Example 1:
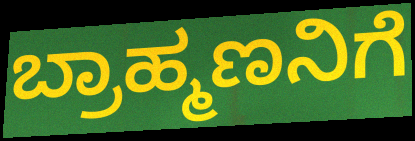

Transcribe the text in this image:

ಬ್ರಾಹ್ಮಣನಿಗೆ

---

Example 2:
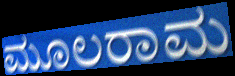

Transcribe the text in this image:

ಮೂಲರಾಮ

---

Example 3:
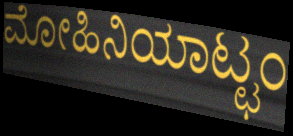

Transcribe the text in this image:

ಮೋಹಿನಿಯಾಟ್ಟಂ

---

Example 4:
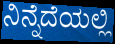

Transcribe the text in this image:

ನಿನ್ನೆದೆಯಲ್ಲಿ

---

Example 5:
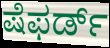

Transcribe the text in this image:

ಷೆಫರ್ಡ್